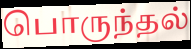
பொருந்தல்